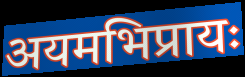
अयमभिप्रायः